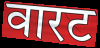
वारट